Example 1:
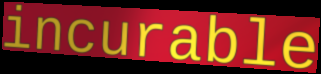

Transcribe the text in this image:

incurable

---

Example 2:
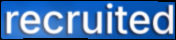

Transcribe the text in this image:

recruited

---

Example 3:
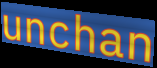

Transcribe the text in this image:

unchan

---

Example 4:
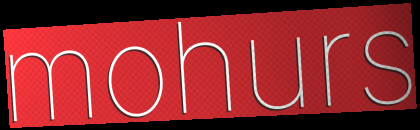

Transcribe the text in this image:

mohurs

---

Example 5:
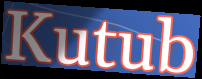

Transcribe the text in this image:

Kutub